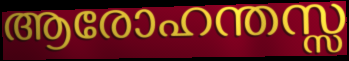
ആരോഹന്തസ്സ